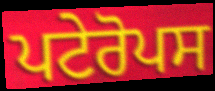
ਪਟੇਰੋਪਸ